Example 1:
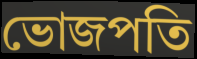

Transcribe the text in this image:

ভোজপতি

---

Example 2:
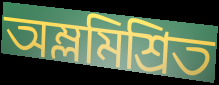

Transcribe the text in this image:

অম্লমিশ্রিত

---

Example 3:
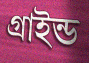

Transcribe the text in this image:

গ্রাইন্ড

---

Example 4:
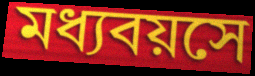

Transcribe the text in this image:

মধ্যবয়সে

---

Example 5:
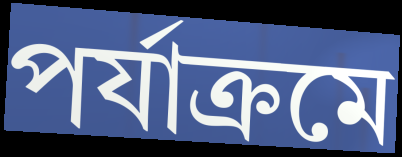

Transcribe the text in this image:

পর্যাক্রমে